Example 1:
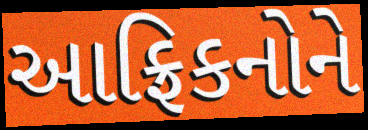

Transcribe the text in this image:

આફ્રિકનોને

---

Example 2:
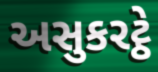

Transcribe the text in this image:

અસુકરટ્ઠે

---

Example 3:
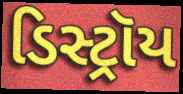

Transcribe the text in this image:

ડિસ્ટ્રૉય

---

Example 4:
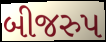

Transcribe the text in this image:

બીજરુપ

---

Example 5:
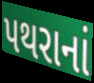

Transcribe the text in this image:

પથરાનાં